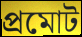
প্রমোট